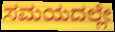
ಸಮಯದಲ್ಲೇ